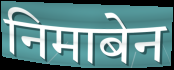
निमाबेन